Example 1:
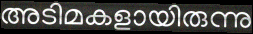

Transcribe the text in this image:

അടിമകളായിരുന്നു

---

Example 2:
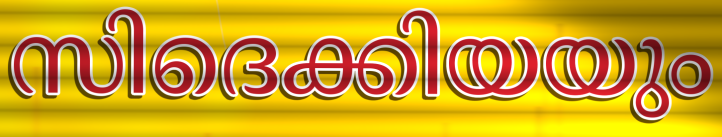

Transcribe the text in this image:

സിദെക്കിയയും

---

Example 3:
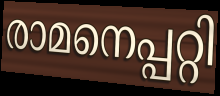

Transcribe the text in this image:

രാമനെപ്പറ്റി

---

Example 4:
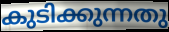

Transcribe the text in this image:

കുടിക്കുന്നതു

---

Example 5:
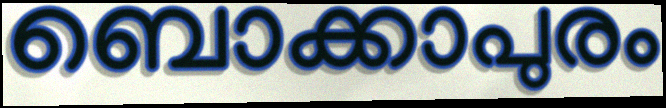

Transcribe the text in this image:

ബൊക്കാപുരം